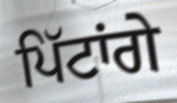
ਪਿੱਟਾਂਗੇ